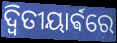
ଦ୍ଵିତୀୟାର୍ଵରେ